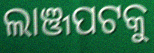
ଲାଞ୍ଜପଟକୁ